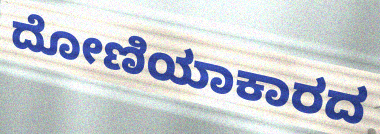
ದೋಣಿಯಾಕಾರದ